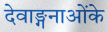
देवाङ्गनाओंके